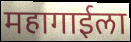
महागाईला